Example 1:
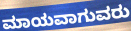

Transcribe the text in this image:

ಮಾಯವಾಗುವರು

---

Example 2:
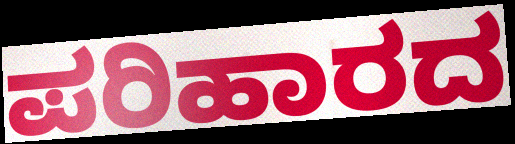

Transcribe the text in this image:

ಪರಿಹಾರದ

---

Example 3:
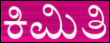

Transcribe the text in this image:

ಕಿಮಿತಿ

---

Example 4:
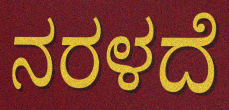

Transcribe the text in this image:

ನರಳದೆ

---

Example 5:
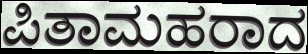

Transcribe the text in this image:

ಪಿತಾಮಹರಾದ